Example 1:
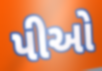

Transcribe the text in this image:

પીઓ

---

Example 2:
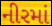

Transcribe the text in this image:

નીરમાં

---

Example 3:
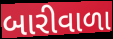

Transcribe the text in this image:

બારીવાળા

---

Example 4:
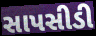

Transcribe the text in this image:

સાપસીડી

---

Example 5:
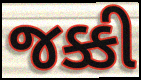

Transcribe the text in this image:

જક્કી